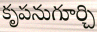
కృపనుగూర్చి